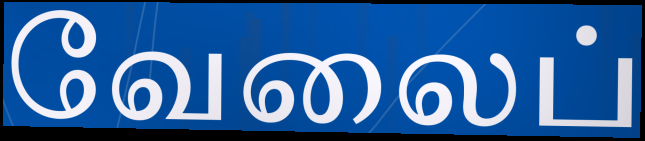
வேலைப்